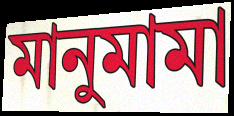
মানুমামা